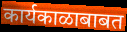
कार्यकाळाबाबत